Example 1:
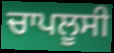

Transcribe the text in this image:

ਚਾਪਲੂਸੀ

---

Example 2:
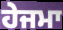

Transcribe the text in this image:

ਹੇਜਮਾ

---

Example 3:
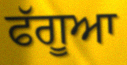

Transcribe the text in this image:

ਫੱਗੂਆ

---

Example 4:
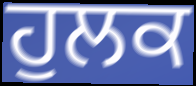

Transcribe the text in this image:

ਹੁਲਕ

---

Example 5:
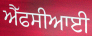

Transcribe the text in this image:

ਐੱਫਸੀਆਈ